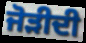
ਜੋੜੀਦੀ